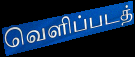
வெளிப்படத்